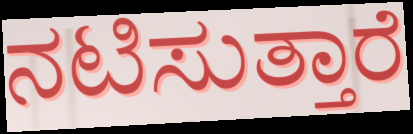
ನಟಿಸುತ್ತಾರೆ